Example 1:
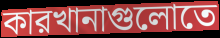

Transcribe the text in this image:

কারখানাগুলোতে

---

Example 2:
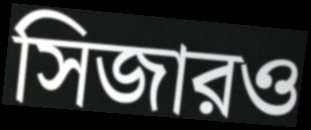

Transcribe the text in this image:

সিজারও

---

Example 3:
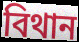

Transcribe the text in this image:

বিথান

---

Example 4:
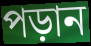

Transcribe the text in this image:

পড়ান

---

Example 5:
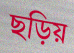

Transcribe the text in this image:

ছড়িয়